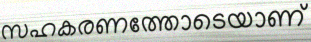
സഹകരണത്തോടെയാണ്